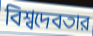
বিশ্বদেবতার